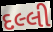
દલ્લી